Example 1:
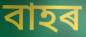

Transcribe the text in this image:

বাহৰ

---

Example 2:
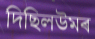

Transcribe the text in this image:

দিছিলউমৰ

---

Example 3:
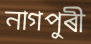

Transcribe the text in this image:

নাগপুৰী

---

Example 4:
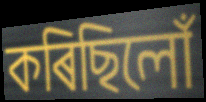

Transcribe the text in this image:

কৰিছিলোঁ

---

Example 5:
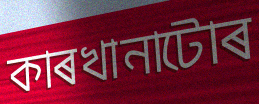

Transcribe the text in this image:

কাৰখানাটোৰ